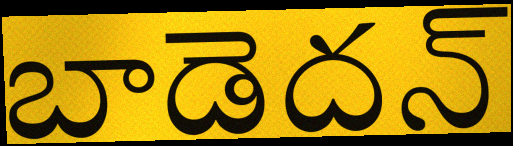
బాడెదన్